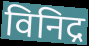
विनिद्र